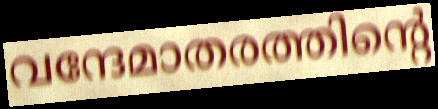
വന്ദേമാതരത്തിന്റെ